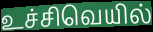
உச்சிவெயில்